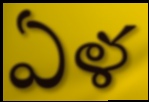
ఏళ